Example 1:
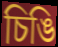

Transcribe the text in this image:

চিঙি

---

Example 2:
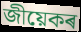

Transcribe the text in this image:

জীয়েকৰ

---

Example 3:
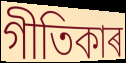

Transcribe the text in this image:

গীতিকাৰ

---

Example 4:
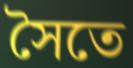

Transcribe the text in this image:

সৈতে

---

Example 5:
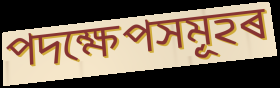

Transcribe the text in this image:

পদক্ষেপসমূহৰ